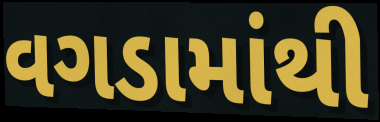
વગડામાંથી